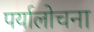
पर्यालोचना